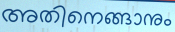
അതിനെങ്ങാനും